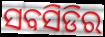
ସବସିଡିର